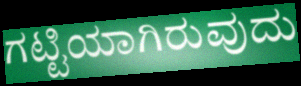
ಗಟ್ಟಿಯಾಗಿರುವುದು